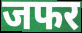
जफर